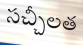
సచ్చీలత